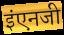
इंएनजी